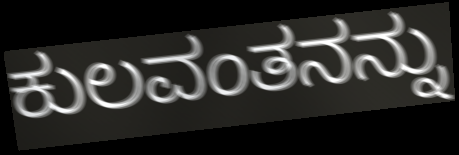
ಕುಲವಂತನನ್ನು